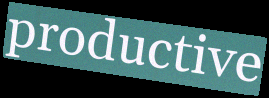
productive